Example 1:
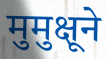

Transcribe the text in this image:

मुमुक्षूने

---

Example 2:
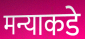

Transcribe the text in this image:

मन्याकडे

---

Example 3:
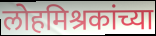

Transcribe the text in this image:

लोहमिश्रकांच्या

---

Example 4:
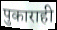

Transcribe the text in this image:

पुकाराही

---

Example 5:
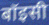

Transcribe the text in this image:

बॉइसी